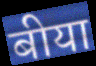
बीया